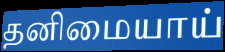
தனிமையாய்